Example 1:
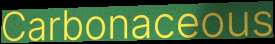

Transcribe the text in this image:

Carbonaceous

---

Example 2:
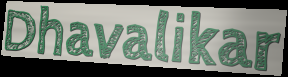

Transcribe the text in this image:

Dhavalikar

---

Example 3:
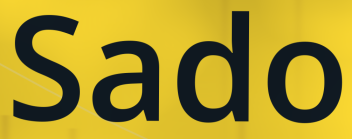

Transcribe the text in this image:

Sado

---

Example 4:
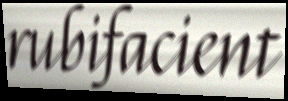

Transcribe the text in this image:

rubifacient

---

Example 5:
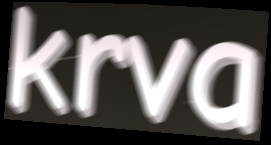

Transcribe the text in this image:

krva